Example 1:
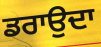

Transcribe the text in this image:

ਡਰਾਉਦਾ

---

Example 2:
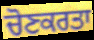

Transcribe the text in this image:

ਚੋਣਕਰਤਾ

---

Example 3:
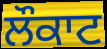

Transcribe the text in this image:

ਲੌਕਾਟ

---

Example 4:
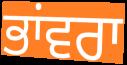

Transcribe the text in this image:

ਭਾਂਵਰਾ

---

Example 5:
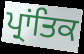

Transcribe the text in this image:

ਪ੍ਰਾਂਤਿਕ